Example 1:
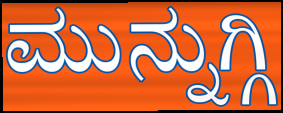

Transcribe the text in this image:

ಮುನ್ನುಗ್ಗಿ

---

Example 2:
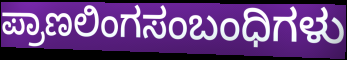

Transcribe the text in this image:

ಪ್ರಾಣಲಿಂಗಸಂಬಂಧಿಗಳು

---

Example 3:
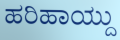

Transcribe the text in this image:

ಹರಿಹಾಯ್ದು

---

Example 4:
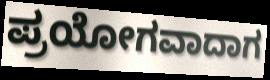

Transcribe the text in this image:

ಪ್ರಯೋಗವಾದಾಗ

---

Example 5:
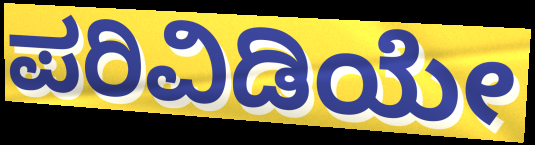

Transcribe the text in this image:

ಪರಿವಿಡಿಯೇ